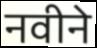
नवीने